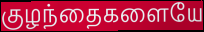
குழந்தைகளையே